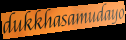
dukkhasamudayo